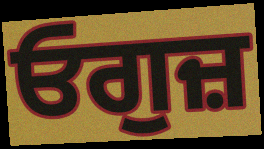
ਓਗੁਜ਼